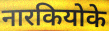
नारकियोके